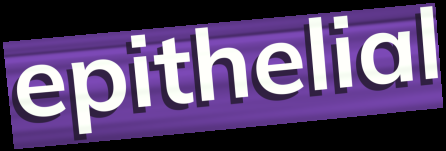
epithelial